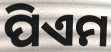
ପିଏମ